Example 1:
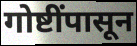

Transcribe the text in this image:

गोष्टींपासून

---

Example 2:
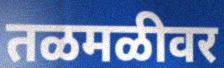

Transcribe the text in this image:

तळमळीवर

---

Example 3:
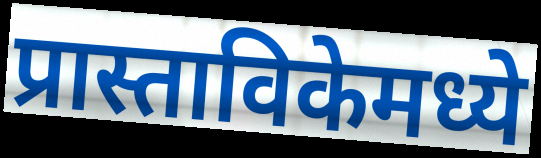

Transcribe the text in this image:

प्रास्ताविकेमध्ये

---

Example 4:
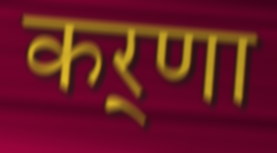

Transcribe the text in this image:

कर्णा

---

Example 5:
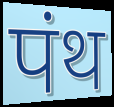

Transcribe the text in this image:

पंथ